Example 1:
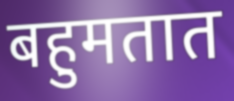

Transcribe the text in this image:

बहुमतात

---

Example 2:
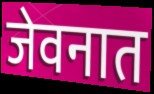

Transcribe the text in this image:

जेवनात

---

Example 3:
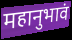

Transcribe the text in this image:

महानुभावं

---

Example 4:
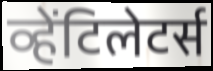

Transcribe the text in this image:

व्हेंटिलेटर्स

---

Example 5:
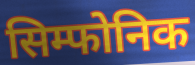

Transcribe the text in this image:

सिम्फोनिक